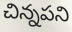
చిన్నపని